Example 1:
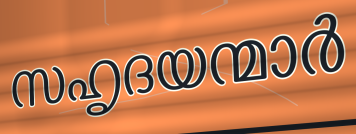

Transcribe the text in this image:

സഹൃദയന്മാർ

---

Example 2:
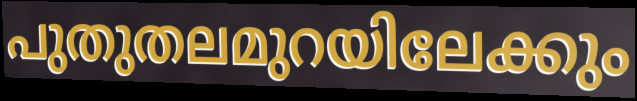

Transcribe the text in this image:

പുതുതലമുറയിലേക്കും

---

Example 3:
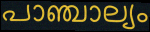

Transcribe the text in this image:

പാഞ്ചാല്യം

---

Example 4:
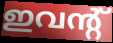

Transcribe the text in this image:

ഇവന്റ്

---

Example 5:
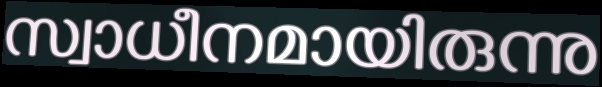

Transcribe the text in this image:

സ്വാധീനമായിരുന്നു